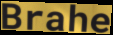
Brahe